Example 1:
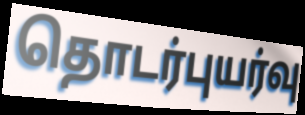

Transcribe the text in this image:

தொடர்புயர்வு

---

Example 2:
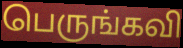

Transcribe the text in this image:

பெருங்கவி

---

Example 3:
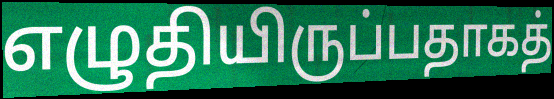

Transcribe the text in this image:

எழுதியிருப்பதாகத்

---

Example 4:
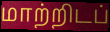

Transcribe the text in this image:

மாற்றிடப்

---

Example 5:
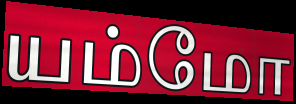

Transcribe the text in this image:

யம்மோ